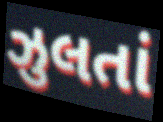
ઝુલતાં